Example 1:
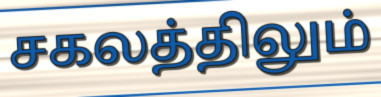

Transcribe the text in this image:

சகலத்திலும்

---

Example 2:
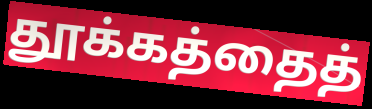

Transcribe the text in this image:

தூக்கத்தைத்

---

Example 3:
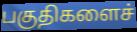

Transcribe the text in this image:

பகுதிகளைச்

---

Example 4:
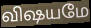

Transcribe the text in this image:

விஷயமே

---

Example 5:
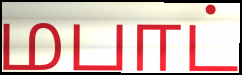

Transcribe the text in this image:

மபாட்